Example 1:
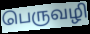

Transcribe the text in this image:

பெருவழி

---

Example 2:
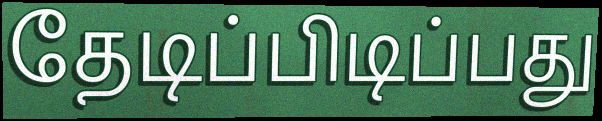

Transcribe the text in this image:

தேடிப்பிடிப்பது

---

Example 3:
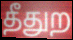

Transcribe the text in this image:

தீதுற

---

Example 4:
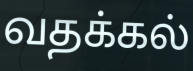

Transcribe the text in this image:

வதக்கல்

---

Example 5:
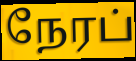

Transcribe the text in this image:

நேரப்